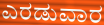
ಎರಡುವಾರ